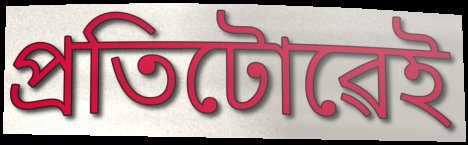
প্ৰতিটোৱেই